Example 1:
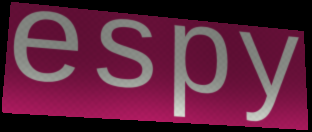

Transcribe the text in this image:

espy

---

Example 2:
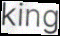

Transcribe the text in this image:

king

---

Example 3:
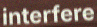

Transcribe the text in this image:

interfere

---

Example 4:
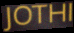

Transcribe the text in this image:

JOTHI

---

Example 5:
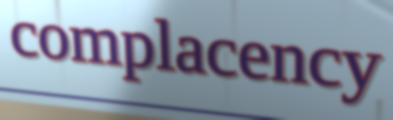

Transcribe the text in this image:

complacency